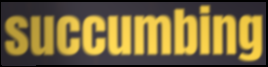
succumbing